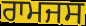
ਰਾਮਜਸ